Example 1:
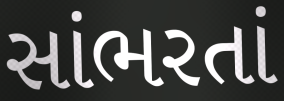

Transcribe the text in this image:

સાંભરતાં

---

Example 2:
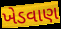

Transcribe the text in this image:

ખેડવાણ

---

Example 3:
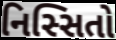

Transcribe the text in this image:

નિસ્સિતો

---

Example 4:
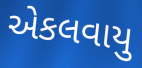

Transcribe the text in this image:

એકલવાયુ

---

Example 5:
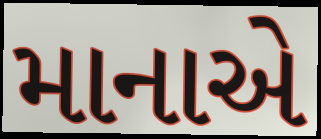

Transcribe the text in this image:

માનાએ